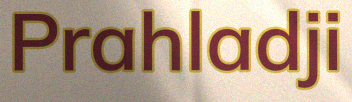
Prahladji